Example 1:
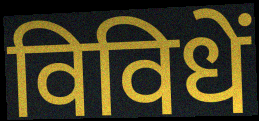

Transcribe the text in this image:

विविधें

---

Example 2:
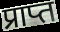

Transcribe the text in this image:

प्राप्‍त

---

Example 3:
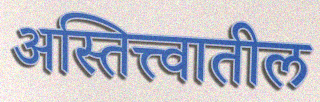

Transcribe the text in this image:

अस्तित्त्वातील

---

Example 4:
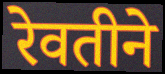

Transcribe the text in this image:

रेवतीने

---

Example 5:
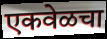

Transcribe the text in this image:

एकवेळचा